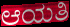
ಆಯತಿ